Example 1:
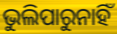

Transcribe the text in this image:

ଭୁଲିପାରୁନାହିଁ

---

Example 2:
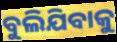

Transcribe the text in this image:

ବୁଲିଯିବାକୁ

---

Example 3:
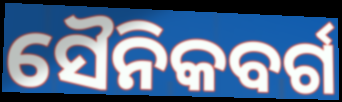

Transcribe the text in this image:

ସୈନିକବର୍ଗ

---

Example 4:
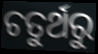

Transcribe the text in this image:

ଚତୁର୍ଥରୁ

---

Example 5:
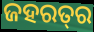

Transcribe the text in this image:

ଜହରତ୍‍ର